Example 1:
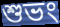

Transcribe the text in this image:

শুভং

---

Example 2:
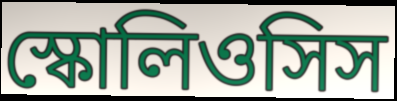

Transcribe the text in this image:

স্কোলিওসিস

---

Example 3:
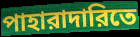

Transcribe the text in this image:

পাহারাদারিতে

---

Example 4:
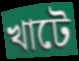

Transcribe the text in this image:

খাটে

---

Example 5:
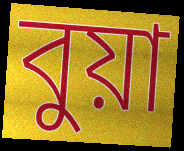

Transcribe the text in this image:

বুয়া